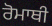
ਰੋਮਾਥੀ